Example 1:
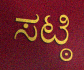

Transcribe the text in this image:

ಸಟ್ಠಿ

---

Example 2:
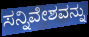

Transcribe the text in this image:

ಸನ್ನಿವೇಶವನ್ನು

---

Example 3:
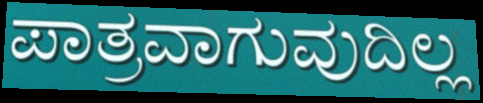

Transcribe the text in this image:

ಪಾತ್ರವಾಗುವುದಿಲ್ಲ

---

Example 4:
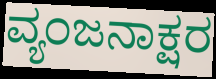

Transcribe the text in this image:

ವ್ಯಂಜನಾಕ್ಷರ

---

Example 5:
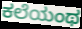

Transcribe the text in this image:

ಕಲೆಯಂಥ